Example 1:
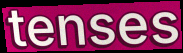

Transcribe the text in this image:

tenses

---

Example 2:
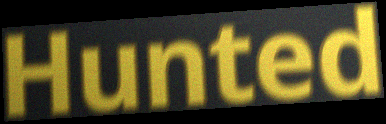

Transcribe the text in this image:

Hunted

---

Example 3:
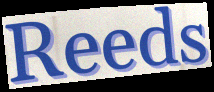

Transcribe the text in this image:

Reeds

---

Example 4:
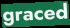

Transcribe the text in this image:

graced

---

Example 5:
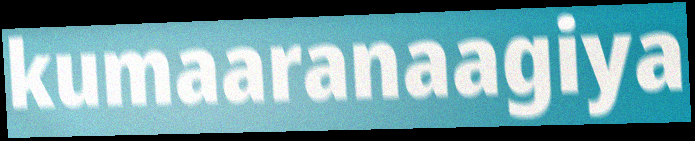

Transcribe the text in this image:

kumaaranaagiya